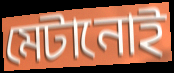
মেটানোই